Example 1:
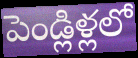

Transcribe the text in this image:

పెండ్లిళ్లలో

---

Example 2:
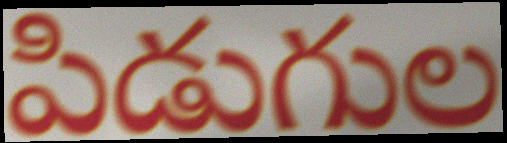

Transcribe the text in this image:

పిడుగుల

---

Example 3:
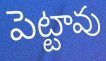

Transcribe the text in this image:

పెట్టావు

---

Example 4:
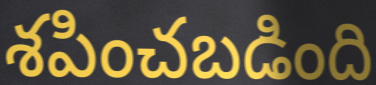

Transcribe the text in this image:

శపించబడింది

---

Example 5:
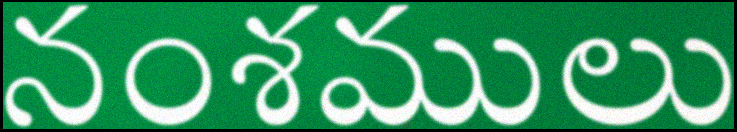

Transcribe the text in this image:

నంశములు